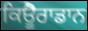
ਕਿਊੈਰਾਡਾਨ